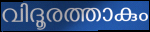
വിദൂരത്താകും